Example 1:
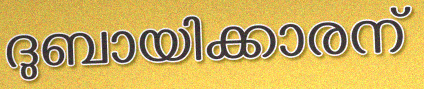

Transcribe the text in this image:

ദുബായിക്കാരന്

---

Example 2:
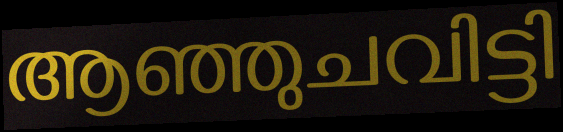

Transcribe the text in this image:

ആഞ്ഞുചവിട്ടി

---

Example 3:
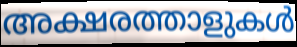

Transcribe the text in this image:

അക്ഷരത്താളുകൾ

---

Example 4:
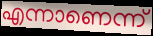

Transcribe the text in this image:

എന്നാണെന്ന്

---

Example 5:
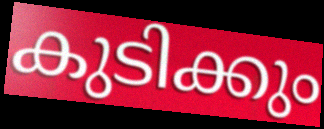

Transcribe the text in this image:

കുടിക്കും